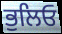
ਭੁਲਿਓ